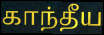
காந்தீய